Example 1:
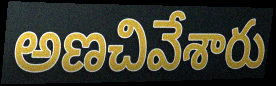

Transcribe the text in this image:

అణచివేశారు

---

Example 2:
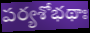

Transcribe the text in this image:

పర్యశోభథాః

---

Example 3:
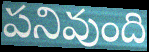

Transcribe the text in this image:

పనివుంది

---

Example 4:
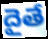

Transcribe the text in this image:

దైతే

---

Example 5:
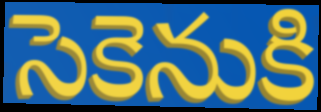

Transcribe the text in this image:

సెకెనుకి